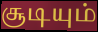
சூடியும்